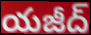
యజీద్